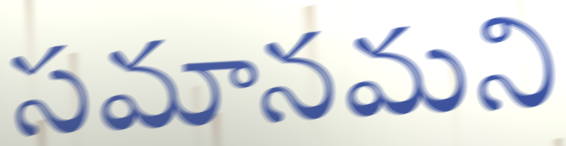
సమానమని